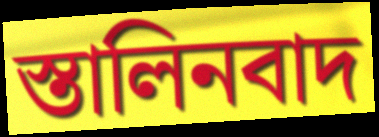
স্তালিনবাদ